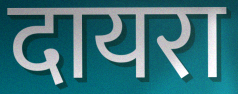
दायरा